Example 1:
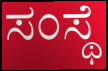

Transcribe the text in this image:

ಸಂಸ್ಥೆ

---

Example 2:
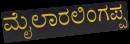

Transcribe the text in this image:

ಮೈಲಾರಲಿಂಗಪ್ಪ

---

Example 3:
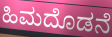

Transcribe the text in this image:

ಹಿಮದೊಡನೆ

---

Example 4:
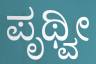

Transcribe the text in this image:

ಪೃಥ್ವೀ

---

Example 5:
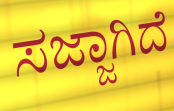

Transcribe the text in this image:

ಸಜ್ಜಾಗಿದೆ